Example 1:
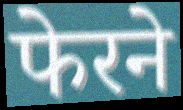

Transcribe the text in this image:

फेरने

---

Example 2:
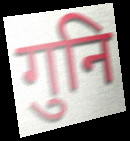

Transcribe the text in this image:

गुनि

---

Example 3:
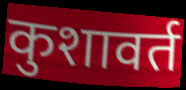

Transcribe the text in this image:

कुशावर्त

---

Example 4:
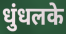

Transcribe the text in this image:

धुंधलके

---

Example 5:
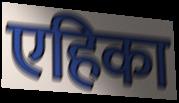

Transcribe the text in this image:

एहिका